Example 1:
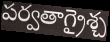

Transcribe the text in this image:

పర్వతాగ్రైశ్చ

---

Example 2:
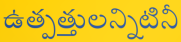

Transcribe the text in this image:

ఉత్పత్తులన్నిటినీ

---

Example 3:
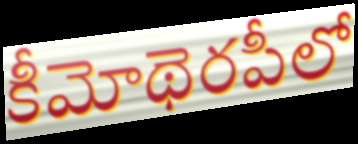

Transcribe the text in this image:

కీమోథెరపీలో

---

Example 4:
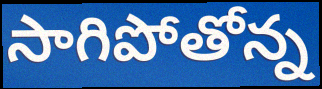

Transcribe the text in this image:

సాగిపోతోన్న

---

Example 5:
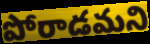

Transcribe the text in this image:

పోరాడమని